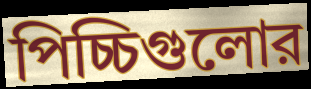
পিচ্চিগুলোর